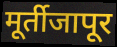
मूर्तीजापूर